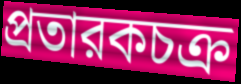
প্রতারকচক্র